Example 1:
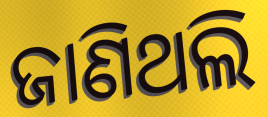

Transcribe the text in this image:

ଜାଣିଥଲି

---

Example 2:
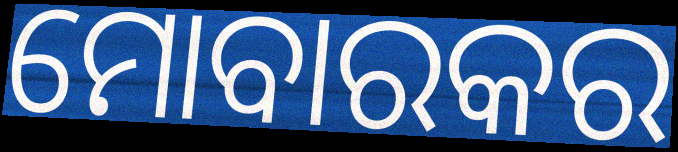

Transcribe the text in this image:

ମୋବାରକର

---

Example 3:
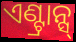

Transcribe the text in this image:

ଏଣ୍ଟ୍ରାନ୍ସ୍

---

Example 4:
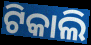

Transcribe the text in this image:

ଟିକାଲି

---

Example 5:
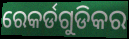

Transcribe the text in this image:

ରେକର୍ଡଗୁଡିକର